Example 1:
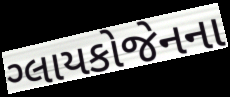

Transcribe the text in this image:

ગ્લાયકોજેનના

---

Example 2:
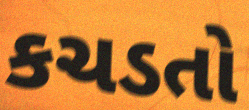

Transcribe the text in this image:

કચડતો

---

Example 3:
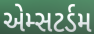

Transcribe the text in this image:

એમ્સટર્ડમ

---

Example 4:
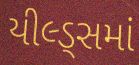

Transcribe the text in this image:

યીલ્ડ્સમાં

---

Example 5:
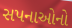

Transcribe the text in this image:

સપનાઓનો